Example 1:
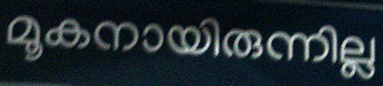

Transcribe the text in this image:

മൂകനായിരുന്നില്ല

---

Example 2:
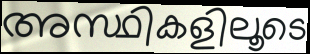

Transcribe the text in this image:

അസ്ഥികളിലൂടെ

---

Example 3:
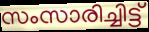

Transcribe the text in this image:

സംസാരിച്ചിട്ട്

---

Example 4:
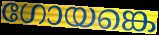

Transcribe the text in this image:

ഗോയങ്കെ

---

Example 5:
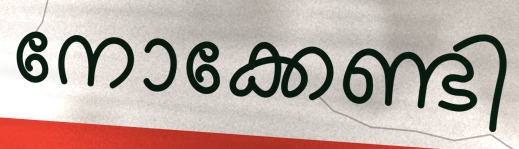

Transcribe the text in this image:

നോക്കേണ്ടി